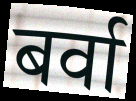
बर्वा